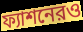
ফ্যাশনেরও